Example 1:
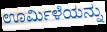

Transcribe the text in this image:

ಊರ್ಮಿಳೆಯನ್ನು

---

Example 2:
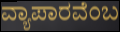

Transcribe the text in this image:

ವ್ಯಾಪಾರವೆಂಬ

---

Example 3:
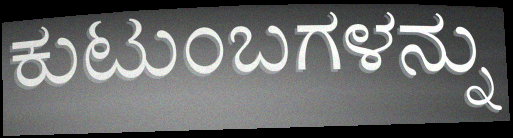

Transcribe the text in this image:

ಕುಟುಂಬಗಳನ್ನು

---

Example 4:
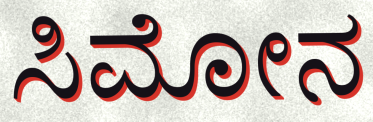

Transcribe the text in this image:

ಸಿಮೋನ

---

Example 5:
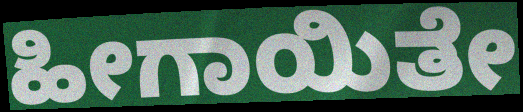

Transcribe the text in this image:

ಹೀಗಾಯಿತೇ